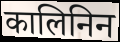
कालिनिन